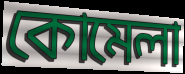
কোমেলা